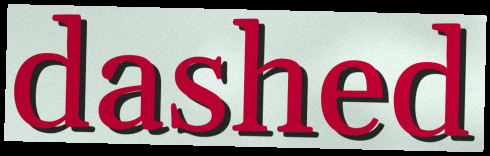
dashed